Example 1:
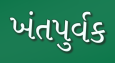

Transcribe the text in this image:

ખંતપુર્વક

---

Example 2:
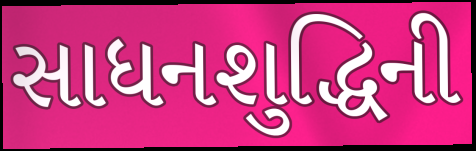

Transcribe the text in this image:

સાધનશુદ્ધિની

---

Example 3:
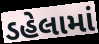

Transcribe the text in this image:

ડહેલામાં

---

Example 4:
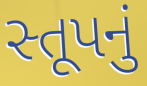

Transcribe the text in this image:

સ્તૂપનું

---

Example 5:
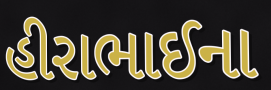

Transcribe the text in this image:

હીરાભાઈના